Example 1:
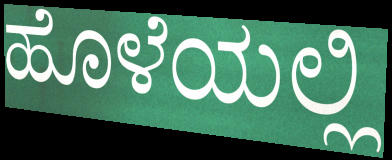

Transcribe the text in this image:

ಹೊಳೆಯಲ್ಲಿ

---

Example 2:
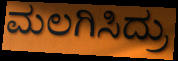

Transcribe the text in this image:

ಮಲಗಿಸಿದ್ರು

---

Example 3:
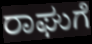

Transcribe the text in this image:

ರಾಘುಗೆ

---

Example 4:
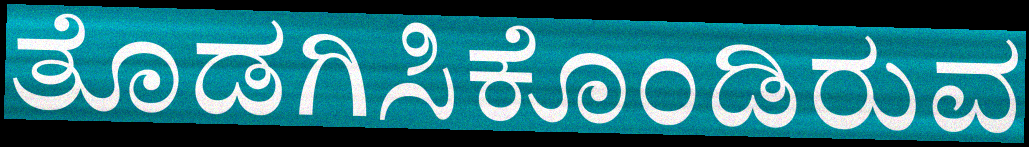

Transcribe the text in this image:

ತೊಡಗಿಸಿಕೊಂಡಿರುವ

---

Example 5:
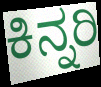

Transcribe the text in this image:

ಕಿನ್ನರಿ